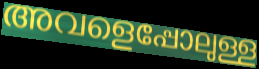
അവളെപ്പോലുള്ള